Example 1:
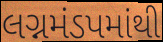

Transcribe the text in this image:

લગ્નમંડપમાંથી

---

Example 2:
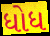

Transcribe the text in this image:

ધોધ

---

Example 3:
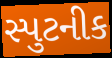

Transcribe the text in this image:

સ્પુટનીક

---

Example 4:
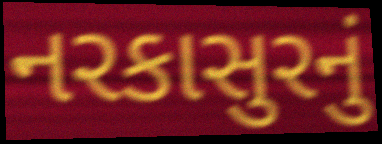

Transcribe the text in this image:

નરકાસુરનું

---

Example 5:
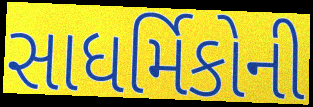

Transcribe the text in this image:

સાધર્મિકોની